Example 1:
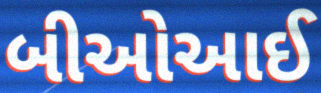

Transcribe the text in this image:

બીઓઆઈ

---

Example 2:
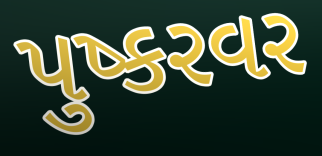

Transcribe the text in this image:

પુષ્કરવર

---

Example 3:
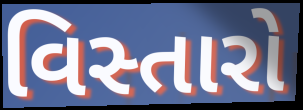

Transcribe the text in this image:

વિસ્તારો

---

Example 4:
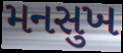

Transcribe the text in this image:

મનસુખ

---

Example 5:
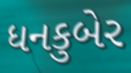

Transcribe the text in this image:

ધનકુબેર